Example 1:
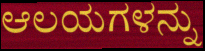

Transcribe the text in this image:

ಆಲಯಗಳನ್ನು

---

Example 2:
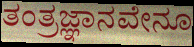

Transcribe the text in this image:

ತಂತ್ರಜ್ಞಾನವೇನೂ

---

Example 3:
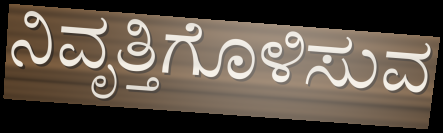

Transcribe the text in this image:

ನಿವೃತ್ತಿಗೊಳಿಸುವ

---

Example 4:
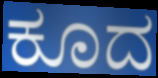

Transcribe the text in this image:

ಕೂದ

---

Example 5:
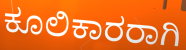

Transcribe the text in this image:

ಕೂಲಿಕಾರರಾಗಿ